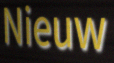
Nieuw